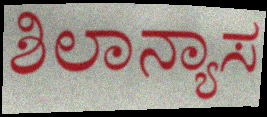
ಶಿಲಾನ್ಯಾಸ